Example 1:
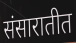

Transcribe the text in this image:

संसारातीत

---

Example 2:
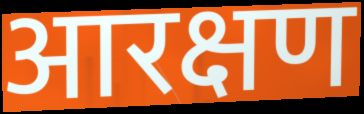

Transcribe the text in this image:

आरक्षण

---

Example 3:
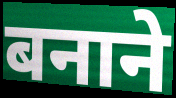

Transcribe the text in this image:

बनाने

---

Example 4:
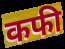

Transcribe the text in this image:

कफी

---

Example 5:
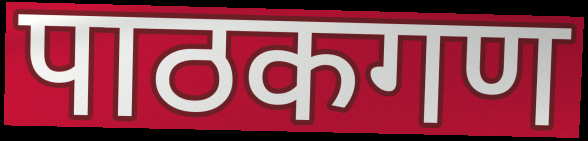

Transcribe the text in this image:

पाठकगण